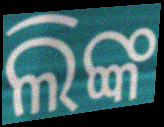
ଲିଙ୍କ